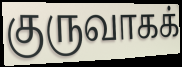
குருவாகக்